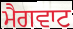
ਮੈਗਵਾਟ